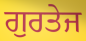
ਗੁਰਤੇਜ